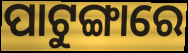
ପାଟୁଙ୍ଗାରେ